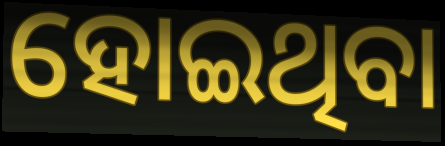
ହୋଇଥିବା